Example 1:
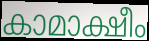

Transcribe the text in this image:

കാമാക്ഷീം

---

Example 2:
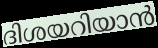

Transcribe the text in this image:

ദിശയറിയാൻ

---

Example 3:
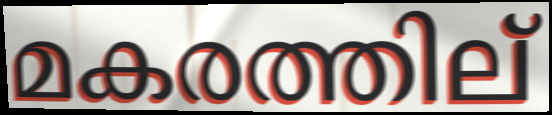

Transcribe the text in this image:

മകരത്തില്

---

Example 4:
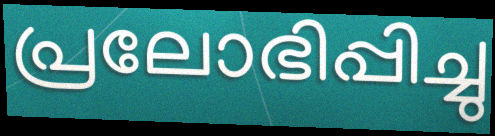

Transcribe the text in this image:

പ്രലോഭിപ്പിച്ചു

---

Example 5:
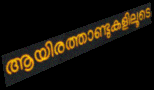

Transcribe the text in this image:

ആയിരത്താണ്ടുകളിലൂടെ